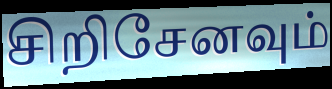
சிறிசேனவும்